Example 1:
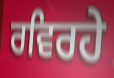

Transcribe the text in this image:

ਰਵਿਰਹੇ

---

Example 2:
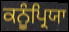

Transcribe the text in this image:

ਕਨੂੰਪ੍ਰਿਯਾ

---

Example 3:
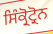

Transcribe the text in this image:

ਸਿੰਕ੍ਰੋਟ੍ਰੋਨ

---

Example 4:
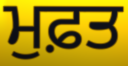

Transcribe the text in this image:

ਮੁਫ਼ਤ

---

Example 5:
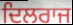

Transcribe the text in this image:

ਦਿਲਰਾਜ